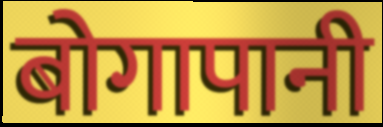
बोगापानी